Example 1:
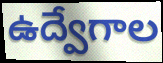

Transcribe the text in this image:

ఉద్వేగాల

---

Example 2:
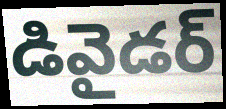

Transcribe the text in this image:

డివైడర్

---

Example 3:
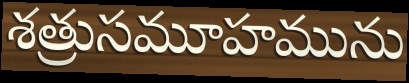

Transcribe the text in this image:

శత్రుసమూహమును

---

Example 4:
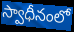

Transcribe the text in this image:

స్వాధీనంలో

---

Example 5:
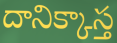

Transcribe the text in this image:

దానిక్కాస్త